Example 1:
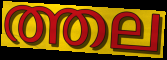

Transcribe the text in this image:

ത്തല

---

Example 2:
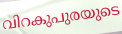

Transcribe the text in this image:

വിറകുപുരയുടെ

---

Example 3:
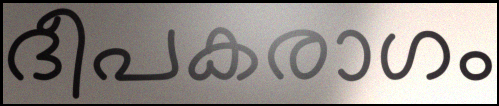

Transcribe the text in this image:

ദീപകരാഗം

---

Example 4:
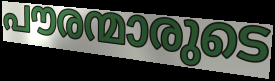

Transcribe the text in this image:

പൗരന്മാരുടെ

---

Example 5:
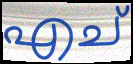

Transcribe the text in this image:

എച്